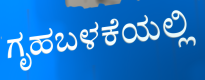
ಗೃಹಬಳಕೆಯಲ್ಲಿ